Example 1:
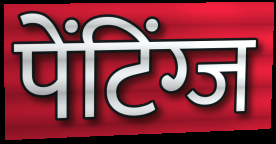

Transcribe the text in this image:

पेंटिंग्ज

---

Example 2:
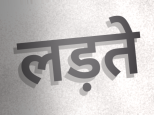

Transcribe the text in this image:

लड़ते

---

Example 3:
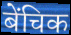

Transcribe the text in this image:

बेंचिक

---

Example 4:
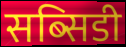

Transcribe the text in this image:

सब्सिडी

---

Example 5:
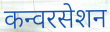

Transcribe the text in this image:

कन्वरसेशन